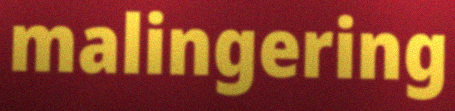
malingering